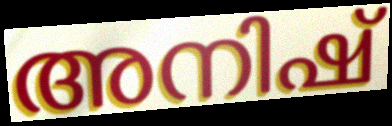
അനിഷ്